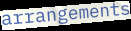
arrangements